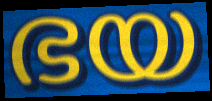
ഭയ